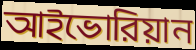
আইভোরিয়ান